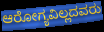
ಆರೋಗ್ಯವಿಲ್ಲದವರು